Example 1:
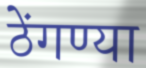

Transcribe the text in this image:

ठेंगण्या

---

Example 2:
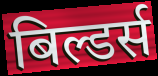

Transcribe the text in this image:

बिल्डर्स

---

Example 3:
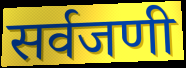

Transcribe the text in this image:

सर्वजणी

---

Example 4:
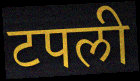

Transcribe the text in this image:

टपली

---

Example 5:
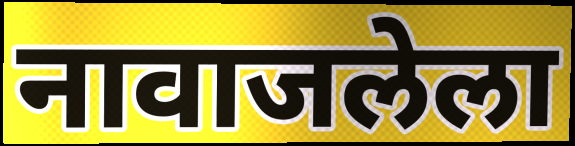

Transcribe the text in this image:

नावाजलेला